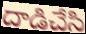
దాడిచేసి